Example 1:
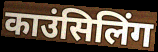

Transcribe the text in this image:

काउंसिलिंग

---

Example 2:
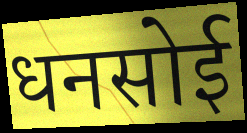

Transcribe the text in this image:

धनसोई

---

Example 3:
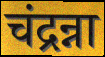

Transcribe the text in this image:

चंद्रन्ना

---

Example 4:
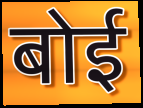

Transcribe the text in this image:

बोई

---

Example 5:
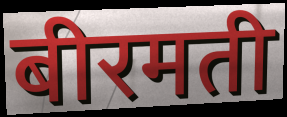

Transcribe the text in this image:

बीरमती